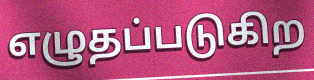
எழுதப்படுகிற